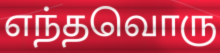
எந்தவொரு